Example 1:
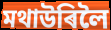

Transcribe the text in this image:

মথাউৰিলৈ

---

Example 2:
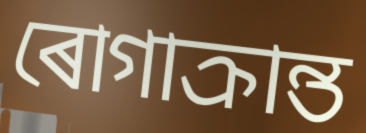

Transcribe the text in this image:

ৰোগাক্ৰান্ত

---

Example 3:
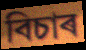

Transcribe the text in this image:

বিচাৰ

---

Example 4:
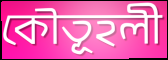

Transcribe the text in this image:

কৌতূহলী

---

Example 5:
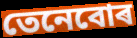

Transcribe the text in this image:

তেনেবোৰ